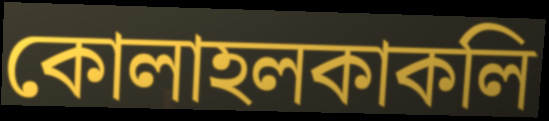
কোলাহলকাকলি